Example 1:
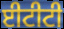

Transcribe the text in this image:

ਈਟੀਟੀ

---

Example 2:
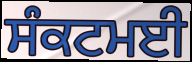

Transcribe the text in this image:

ਸੰਕਟਮਈ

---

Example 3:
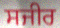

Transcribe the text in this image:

ਸਜੀਰ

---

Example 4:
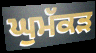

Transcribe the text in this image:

ਘੁਮੱਕੜ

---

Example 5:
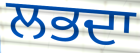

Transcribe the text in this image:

ਲਭਦਾ